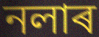
নলাৰ